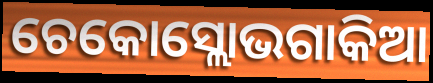
ଚେକୋସ୍ଲୋଭଗାକିଆ